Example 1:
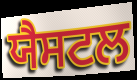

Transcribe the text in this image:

ਯੈਸਟਲ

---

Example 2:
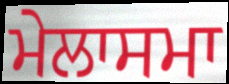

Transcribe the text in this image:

ਮੇਲਾਸਮਾ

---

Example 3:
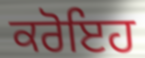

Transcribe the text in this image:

ਕਰੋਇਹ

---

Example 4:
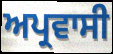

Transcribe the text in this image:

ਅਪ੍ਰਵਾਸੀ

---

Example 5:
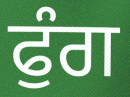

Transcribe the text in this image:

ਫੁੰਗ